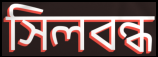
সিলবন্ধ